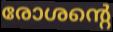
രോശന്റെ